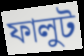
ফালুট